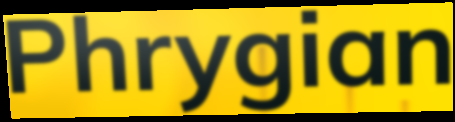
Phrygian